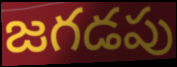
జగడపు